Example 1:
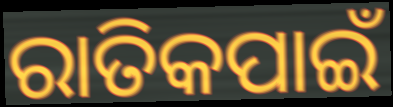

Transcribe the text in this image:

ରାତିକପାଇଁ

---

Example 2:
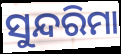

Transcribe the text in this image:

ସୁନ୍ଦରିମା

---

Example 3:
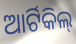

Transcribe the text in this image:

ଆର୍ଟିକିଲ୍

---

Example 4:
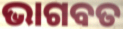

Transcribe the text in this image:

ଭାଗବତ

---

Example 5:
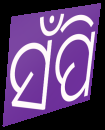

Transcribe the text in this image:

ସଁପି